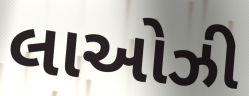
લાઓઝી